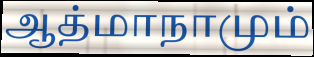
ஆத்மாநாமும்